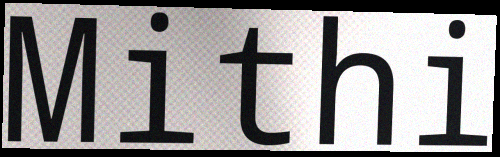
Mithi